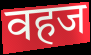
वहज